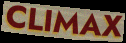
CLIMAX